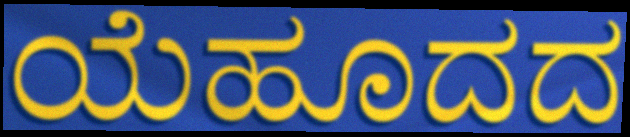
ಯೆಹೂದದ